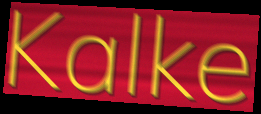
Kalke